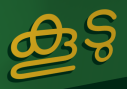
കൂടു